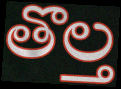
తొల్త